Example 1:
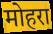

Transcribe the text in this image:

मोहरा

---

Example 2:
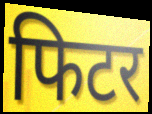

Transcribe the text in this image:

फिटर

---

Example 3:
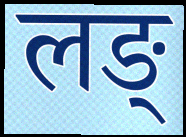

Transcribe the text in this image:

लङ्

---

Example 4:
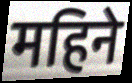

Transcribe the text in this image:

महिने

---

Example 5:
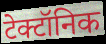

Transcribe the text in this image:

टेक्टॉनिक